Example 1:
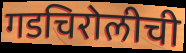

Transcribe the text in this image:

गडचिरोलीची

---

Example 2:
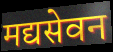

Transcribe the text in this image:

मद्यसेवन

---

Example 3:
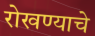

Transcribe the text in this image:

रोखण्याचे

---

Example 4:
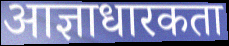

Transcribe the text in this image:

आज्ञाधारकता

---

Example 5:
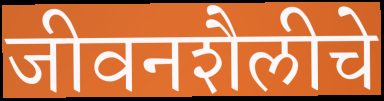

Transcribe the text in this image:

जीवनशैलीचे